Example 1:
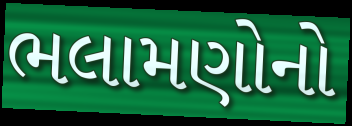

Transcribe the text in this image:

ભલામણોનો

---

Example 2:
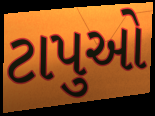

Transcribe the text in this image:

ટાપુઓ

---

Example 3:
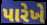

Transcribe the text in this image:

પારેખે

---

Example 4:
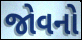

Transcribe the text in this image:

જોવનો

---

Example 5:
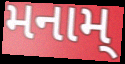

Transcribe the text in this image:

મનામ્